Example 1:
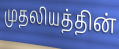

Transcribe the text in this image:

முதலியத்தின்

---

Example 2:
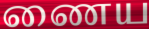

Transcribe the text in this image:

ணைய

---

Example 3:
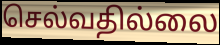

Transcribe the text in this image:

செல்வதில்லை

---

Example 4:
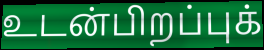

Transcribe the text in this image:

உடன்பிறப்புக்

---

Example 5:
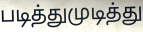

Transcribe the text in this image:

படித்துமுடித்து